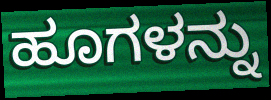
ಹೂಗಳನ್ನು